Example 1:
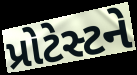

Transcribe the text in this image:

પ્રોટેસ્ટને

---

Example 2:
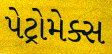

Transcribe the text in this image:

પેટ્રોમેક્સ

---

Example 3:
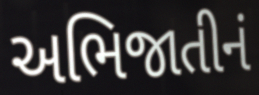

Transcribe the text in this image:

અભિજાતીનં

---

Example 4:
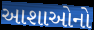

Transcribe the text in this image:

આશાઓનો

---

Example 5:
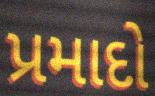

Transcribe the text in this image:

પ્રમાદો